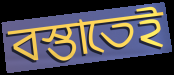
বস্তাতেই